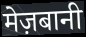
मेज़बानी